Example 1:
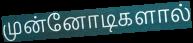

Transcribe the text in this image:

முன்னோடிகளால்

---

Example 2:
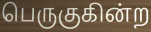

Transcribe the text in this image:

பெருகுகின்ற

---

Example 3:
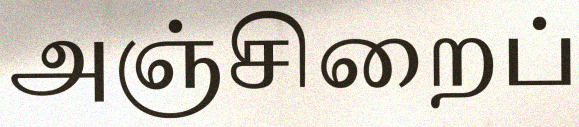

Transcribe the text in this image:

அஞ்சிறைப்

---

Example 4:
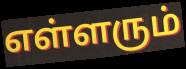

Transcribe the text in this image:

எள்ளரும்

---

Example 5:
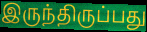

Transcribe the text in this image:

இருந்திருப்பது